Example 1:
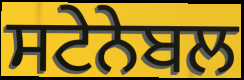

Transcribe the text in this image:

ਸਟੇਨੇਬਲ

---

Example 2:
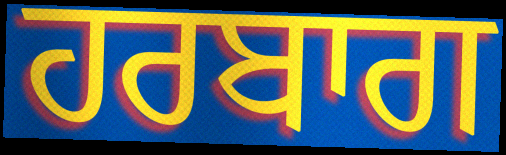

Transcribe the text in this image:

ਹਰਬਾਗ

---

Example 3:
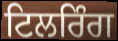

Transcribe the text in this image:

ਟਿਲਰਿੰਗ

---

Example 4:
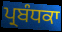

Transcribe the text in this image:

ਪ੍ਰਬੰਧਕਾ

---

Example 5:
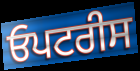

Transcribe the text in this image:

ਓਪਟਰੀਸ